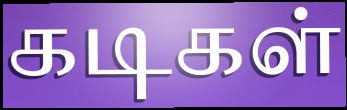
கடிகள்